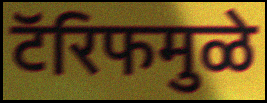
टॅरिफमुळे